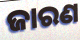
ଜାରଣ